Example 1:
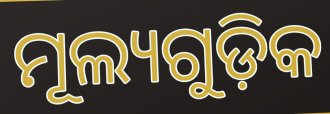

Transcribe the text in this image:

ମୂଲ୍ୟଗୁଡ଼ିକ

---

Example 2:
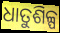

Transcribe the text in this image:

ଧାତୁଶିଳ୍ପ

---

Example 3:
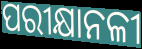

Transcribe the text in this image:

ପରୀକ୍ଷାନଳୀ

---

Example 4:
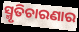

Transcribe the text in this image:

ସ୍ମୃତିଚାରଣାର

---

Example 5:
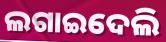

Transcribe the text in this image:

ଲଗାଇଦେଲି